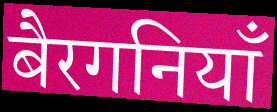
बैरगनियाँ